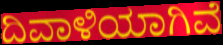
ದಿವಾಳಿಯಾಗಿವೆ